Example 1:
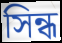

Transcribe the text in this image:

সিন্ধ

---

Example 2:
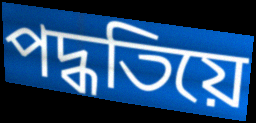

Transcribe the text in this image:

পদ্ধতিয়ে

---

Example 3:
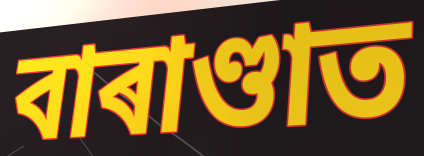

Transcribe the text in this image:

বাৰাণ্ডাত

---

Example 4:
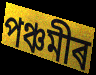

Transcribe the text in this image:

পঞ্চমীৰ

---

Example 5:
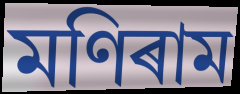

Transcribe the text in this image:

মণিৰাম